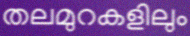
തലമുറകളിലും